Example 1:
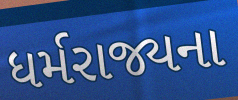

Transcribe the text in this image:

ધર્મરાજ્યના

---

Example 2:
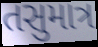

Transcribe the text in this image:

તસુમાત્ર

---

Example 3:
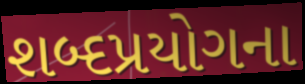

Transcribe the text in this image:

શબ્દપ્રયોગના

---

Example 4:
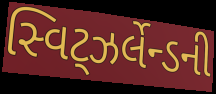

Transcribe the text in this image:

સ્વિટ્ઝર્લેન્ડની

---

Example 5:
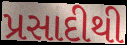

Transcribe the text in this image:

પ્રસાદીથી